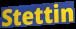
Stettin